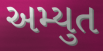
અમ્યુત